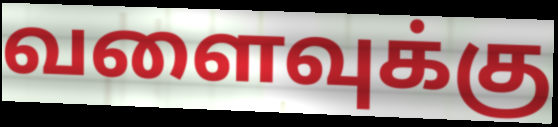
வளைவுக்கு